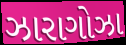
ઝારાગોઝા